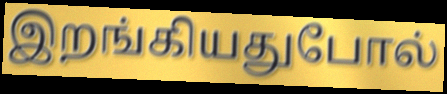
இறங்கியதுபோல்